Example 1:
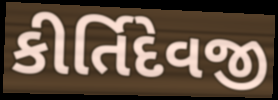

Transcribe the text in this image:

કીર્તિદેવજી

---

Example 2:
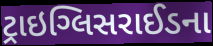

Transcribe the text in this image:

ટ્રાઇગ્લિસરાઈડના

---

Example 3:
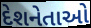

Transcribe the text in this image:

દેશનેતાઓ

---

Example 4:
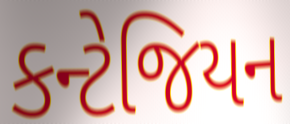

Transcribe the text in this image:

કન્ટેજિયન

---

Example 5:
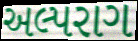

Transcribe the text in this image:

અલ્પરાગ